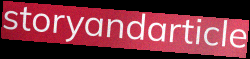
storyandarticle